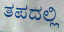
ತಪದಲ್ಲಿ